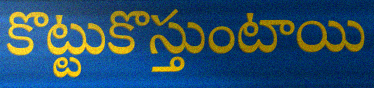
కొట్టుకొస్తుంటాయి